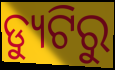
ଡ୍ୟୁଟିରୁ